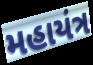
મહાયંત્ર